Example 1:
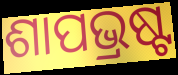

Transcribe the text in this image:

ଶାପଭ୍ରଷ୍ଟ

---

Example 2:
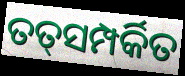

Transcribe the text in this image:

ତତ୍‌ସମ୍ପର୍କିତ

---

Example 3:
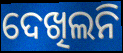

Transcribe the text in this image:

ଦେଖିଲନି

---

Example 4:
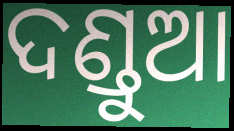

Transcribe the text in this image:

ଦଣ୍ଡୁଆ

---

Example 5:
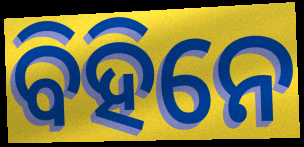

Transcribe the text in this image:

ବିହିନେ